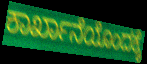
ಕಾರ್ಖಾನೆಯೊಂದಕ್ಕೆ